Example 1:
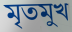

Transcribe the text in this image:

মৃতমুখ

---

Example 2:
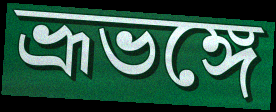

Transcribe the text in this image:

ভ্রূভঙ্গে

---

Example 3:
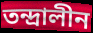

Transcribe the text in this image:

তন্দ্রালীন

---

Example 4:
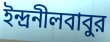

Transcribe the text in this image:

ইন্দ্রনীলবাবুর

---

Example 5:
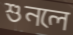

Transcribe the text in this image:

শুনলে